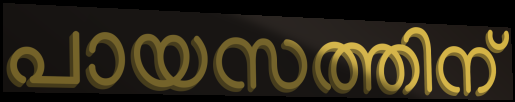
പായസത്തിന്